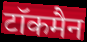
टॉकमैन